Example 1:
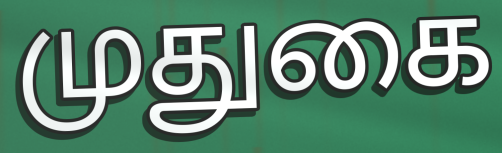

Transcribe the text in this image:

முதுகை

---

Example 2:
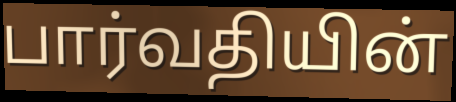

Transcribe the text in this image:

பார்வதியின்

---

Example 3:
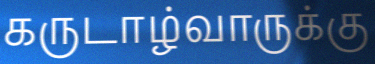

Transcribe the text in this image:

கருடாழ்வாருக்கு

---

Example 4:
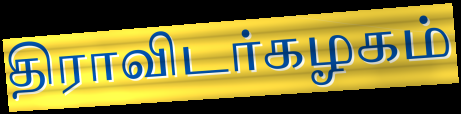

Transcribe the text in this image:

திராவிடர்கழகம்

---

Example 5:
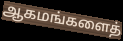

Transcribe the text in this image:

ஆகமங்களைத்